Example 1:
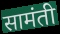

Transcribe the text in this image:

सामंती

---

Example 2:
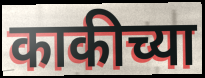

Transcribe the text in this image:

काकीच्या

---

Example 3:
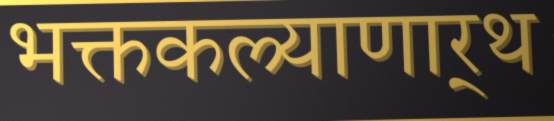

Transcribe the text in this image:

भक्तकल्याणार्थ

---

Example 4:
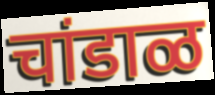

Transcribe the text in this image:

चांडाळ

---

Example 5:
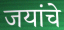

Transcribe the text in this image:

जयांचे